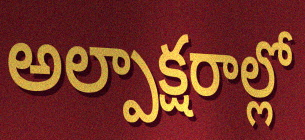
అల్పాక్షరాల్లో